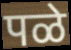
पळे